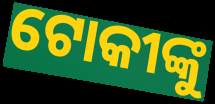
ଟୋକୀଙ୍କୁ